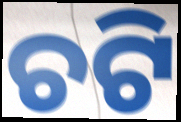
ଚଟି